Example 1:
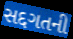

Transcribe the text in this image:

સદ્દગતની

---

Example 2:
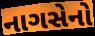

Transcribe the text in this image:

નાગસેનો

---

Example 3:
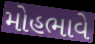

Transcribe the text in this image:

મોહભાવે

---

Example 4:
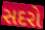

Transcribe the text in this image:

સદરો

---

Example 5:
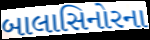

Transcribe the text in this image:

બાલાસિનોરના